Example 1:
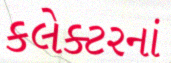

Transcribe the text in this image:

કલેક્ટરનાં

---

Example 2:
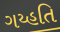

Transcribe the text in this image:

ગય્હતિ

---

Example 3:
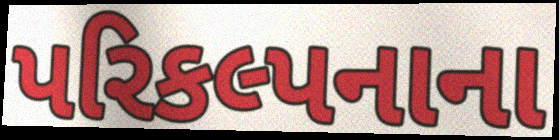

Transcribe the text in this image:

પરિકલ્પનાના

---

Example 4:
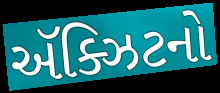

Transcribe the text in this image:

ઍક્ઝિટનો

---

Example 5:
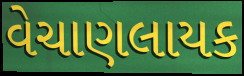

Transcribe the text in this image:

વેચાણલાયક